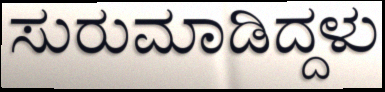
ಸುರುಮಾಡಿದ್ದಳು